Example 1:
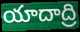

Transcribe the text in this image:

యాదాద్రి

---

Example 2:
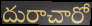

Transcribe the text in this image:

దురాచారో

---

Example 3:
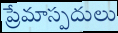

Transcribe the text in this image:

ప్రేమాస్పదులు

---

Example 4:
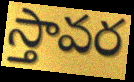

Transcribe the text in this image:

స్తావర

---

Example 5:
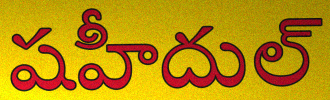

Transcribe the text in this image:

షహీదుల్